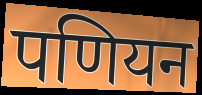
पणियन